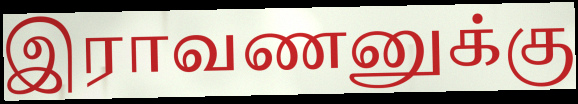
இராவணனுக்கு